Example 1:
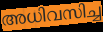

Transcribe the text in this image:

അധിവസിച്ച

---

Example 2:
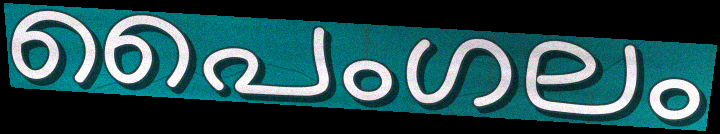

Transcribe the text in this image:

പൈംഗലം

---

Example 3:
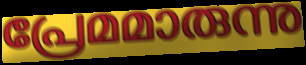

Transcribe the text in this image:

പ്രേമമാരുന്നു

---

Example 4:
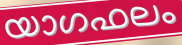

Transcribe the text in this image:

യാഗഫലം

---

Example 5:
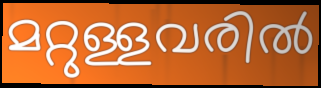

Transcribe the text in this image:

മറ്റുള്ളവരിൽ